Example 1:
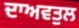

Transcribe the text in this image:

ਦਾਅਵਤੁਲ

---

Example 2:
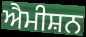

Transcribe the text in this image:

ਐਮੀਸ਼ਨ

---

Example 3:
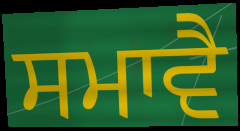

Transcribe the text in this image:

ਸਮਾਵੈ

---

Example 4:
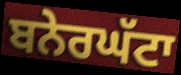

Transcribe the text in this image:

ਬਨੇਰਘੱਟਾ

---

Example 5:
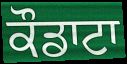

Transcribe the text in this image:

ਕੌਡਾਟਾ